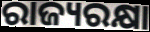
ରାଜ୍ୟରକ୍ଷା